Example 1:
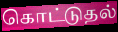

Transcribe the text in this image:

கொட்டுதல்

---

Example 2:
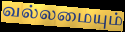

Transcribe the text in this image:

வல்லமையும்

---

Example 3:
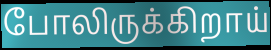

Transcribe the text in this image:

போலிருக்கிறாய்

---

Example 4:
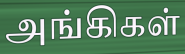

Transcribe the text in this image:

அங்கிகள்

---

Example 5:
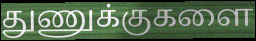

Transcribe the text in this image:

துணுக்குகளை